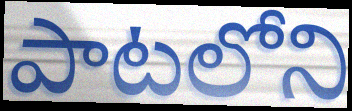
పాటలోని